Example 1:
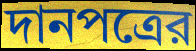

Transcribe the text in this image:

দানপত্রের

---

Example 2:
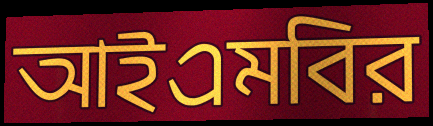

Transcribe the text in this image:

আইএমবির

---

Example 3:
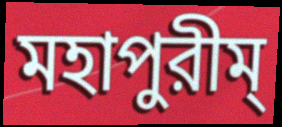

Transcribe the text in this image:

মহাপুরীম্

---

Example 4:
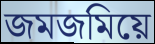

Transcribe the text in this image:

জমজমিয়ে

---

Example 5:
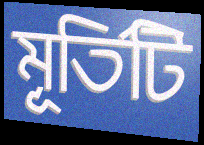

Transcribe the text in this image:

মূর্তিটি